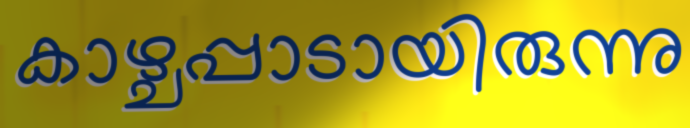
കാഴ്ചപ്പാടായിരുന്നു